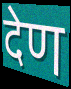
देण